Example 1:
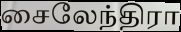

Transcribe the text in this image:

சைலேந்திரா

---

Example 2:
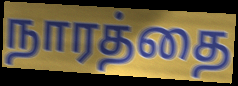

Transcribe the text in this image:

நாரத்தை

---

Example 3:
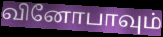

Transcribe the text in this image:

வினோபாவும்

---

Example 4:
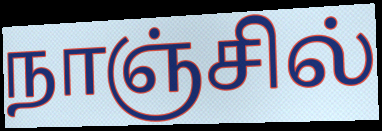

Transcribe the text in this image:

நாஞ்சில்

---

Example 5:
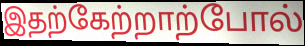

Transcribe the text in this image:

இதற்கேற்றாற்போல்